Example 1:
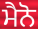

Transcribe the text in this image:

ਮੈਨੋ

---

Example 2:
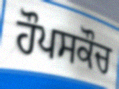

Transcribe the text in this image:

ਹੌਪਸਕੌਚ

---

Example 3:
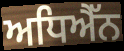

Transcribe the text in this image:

ਅਧਿਐੱਨ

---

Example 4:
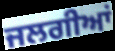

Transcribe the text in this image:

ਜਲਗੀਆਂ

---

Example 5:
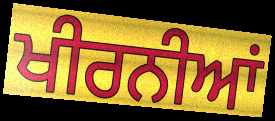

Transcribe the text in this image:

ਖੀਰਨੀਆਂ